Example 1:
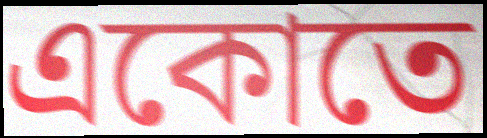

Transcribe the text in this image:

একোতে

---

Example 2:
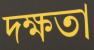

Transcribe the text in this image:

দক্ষতা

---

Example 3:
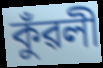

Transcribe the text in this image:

কুঁৱলী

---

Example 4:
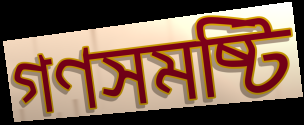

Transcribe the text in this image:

গণসমষ্টি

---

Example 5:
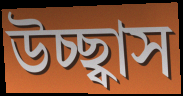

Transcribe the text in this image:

উচ্ছ্বাস